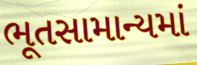
ભૂતસામાન્યમાં